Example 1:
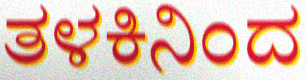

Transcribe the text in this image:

ತಳಕಿನಿಂದ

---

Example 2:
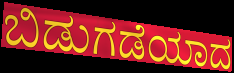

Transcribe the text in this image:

ಬಿಡುಗಡೆಯಾದ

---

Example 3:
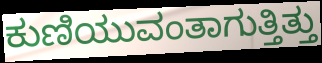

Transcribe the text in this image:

ಕುಣಿಯುವಂತಾಗುತ್ತಿತ್ತು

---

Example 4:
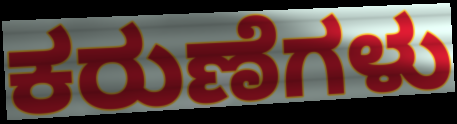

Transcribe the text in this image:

ಕರುಣೆಗಳು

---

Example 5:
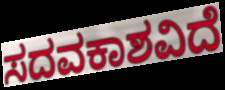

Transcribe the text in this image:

ಸದವಕಾಶವಿದೆ